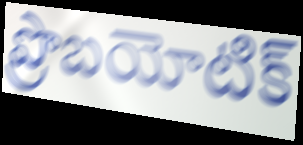
ప్రొబయోటిక్